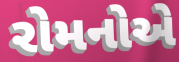
રોમનોએ